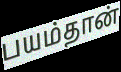
பயம்தான்